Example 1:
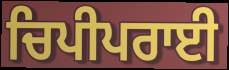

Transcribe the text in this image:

ਚਿਪੀਪਰਾਈ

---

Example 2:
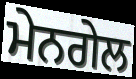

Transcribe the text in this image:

ਮੇਨਗੇਲ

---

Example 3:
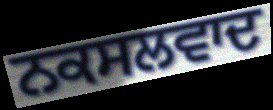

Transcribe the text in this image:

ਨਕਸਲਵਾਦ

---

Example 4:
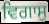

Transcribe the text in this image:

ਵਿਗਾਸੁ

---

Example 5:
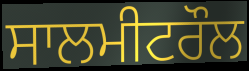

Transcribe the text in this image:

ਸਾਲਮੀਟਰੌਲ